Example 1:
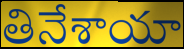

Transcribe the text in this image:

తినేశాయా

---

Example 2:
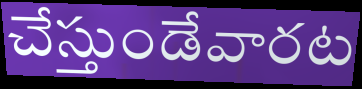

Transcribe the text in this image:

చేస్తుండేవారట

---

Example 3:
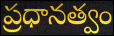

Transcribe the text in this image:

ప్రధానత్వం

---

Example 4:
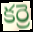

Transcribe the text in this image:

కర్రె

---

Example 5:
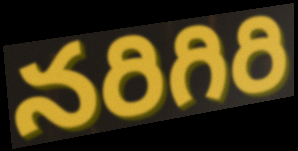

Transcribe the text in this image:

నరిగిరి